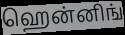
ஹென்னிங்